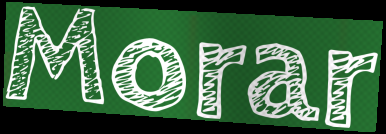
Morar